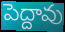
పెద్దావు